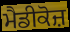
ਮੈਡੀਕੋਜ਼